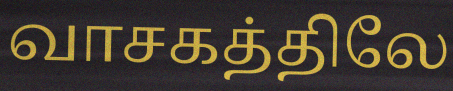
வாசகத்திலே